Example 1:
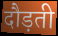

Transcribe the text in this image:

दौड़ती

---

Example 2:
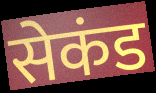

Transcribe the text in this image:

सेकंड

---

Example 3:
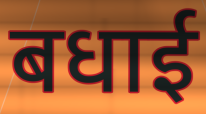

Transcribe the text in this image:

बधाई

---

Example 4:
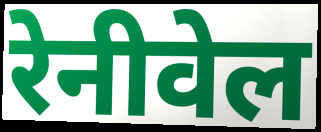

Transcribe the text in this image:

रेनीवेल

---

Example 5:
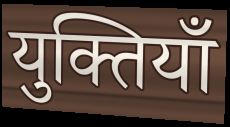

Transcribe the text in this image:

युक्तियाँ